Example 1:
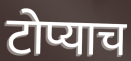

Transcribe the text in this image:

टोप्याच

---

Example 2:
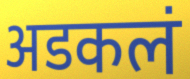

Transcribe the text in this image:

अडकलं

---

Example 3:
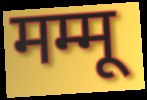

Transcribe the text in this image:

मम्मू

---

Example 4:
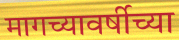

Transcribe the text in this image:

मागच्यावर्षीच्या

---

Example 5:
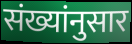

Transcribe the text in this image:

संख्यांनुसार